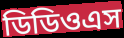
ডিডিওএস